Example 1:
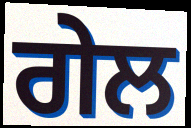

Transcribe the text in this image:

ਗੇਲ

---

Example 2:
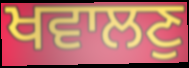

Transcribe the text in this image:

ਖਵਾਲਣੁ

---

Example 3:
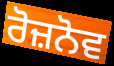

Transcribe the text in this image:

ਰੋਜ਼ਨੋਵ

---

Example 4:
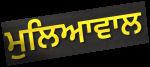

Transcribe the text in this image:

ਮੁਲਿਆਵਾਲ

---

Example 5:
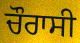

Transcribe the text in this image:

ਚੌਰਾਸੀ